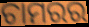
ଚାମରର